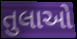
તુલાઓ